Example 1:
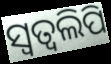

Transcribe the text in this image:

ସ୍ଵତ୍ଵଲିପି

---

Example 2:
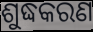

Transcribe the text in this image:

ଶୁଦ୍ଧକରଣ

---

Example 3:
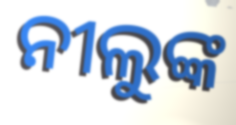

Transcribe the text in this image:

ନୀଲୁଙ୍କ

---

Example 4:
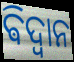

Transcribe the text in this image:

ଵିଦ୍ଵାନ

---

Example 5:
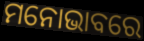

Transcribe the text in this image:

ମନୋଭାବରେ